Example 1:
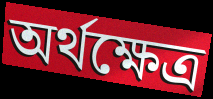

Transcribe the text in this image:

অৰ্থক্ষেত্ৰ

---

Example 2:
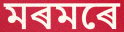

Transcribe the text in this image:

মৰমৰে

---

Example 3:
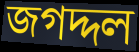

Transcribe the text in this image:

জগদ্দল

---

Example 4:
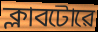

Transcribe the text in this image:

ক্লাবটোৱে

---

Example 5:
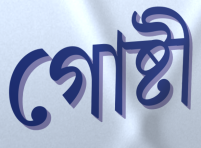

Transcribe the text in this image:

গোষ্টী